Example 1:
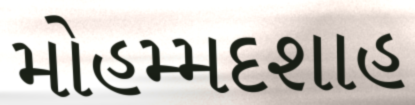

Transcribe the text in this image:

મોહમ્મદશાહ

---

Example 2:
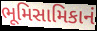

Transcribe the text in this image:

ભૂમિસામિકાનં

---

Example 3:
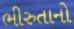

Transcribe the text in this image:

ભીરુતાનો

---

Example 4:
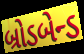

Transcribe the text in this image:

બ્રોડબેન્ડ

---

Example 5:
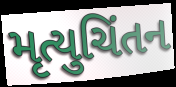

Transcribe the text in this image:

મૃત્યુચિંતન